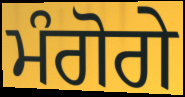
ਮੰਗੋਗੇ